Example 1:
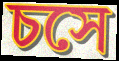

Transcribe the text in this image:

চসে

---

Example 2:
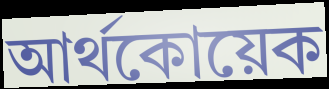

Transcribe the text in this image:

আর্থকোয়েক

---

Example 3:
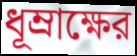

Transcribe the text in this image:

ধূম্রাক্ষের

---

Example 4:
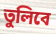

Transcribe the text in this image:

তুলিবে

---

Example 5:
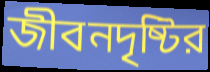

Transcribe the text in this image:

জীবনদৃষ্টির